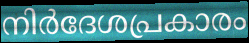
നിർദേശപ്രകാരം